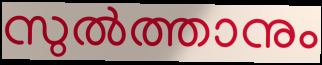
സുൽത്താനും